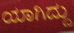
ಯಾಗಿದ್ದು